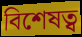
বিশেষত্ব